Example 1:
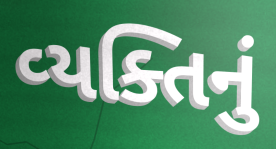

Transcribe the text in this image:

વ્‍યક્તિનું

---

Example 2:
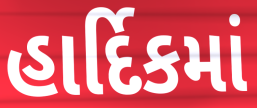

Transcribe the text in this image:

હાર્દિકમાં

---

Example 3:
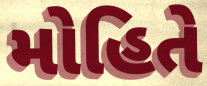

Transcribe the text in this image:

મોહિતે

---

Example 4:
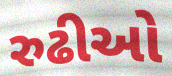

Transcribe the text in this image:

રુઢીઓ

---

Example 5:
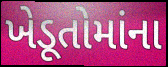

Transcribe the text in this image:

ખેડૂતોમાંના